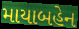
માયાબહેન